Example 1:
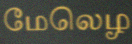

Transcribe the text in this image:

மேலெழ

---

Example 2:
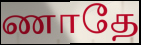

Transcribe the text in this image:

ணாதே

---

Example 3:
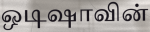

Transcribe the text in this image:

ஒடிஷாவின்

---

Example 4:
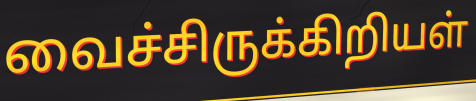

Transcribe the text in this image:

வைச்சிருக்கிறியள்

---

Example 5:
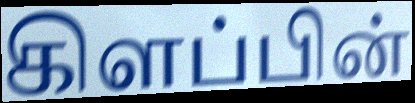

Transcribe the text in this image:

கிளப்பின்